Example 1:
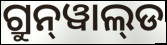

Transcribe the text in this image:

ଗ୍ରୁନ୍‌ୱାଲ୍‌ଡ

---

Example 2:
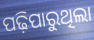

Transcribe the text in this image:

ପଢ଼ିପାରୁଥିଲା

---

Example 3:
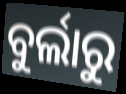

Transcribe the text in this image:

ବୁର୍ଲାରୁ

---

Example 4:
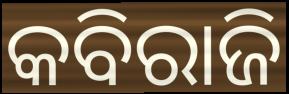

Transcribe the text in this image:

କବିରାଜି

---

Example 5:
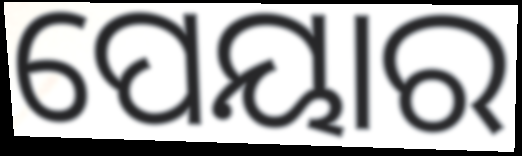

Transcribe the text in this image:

ପେୟାର